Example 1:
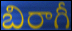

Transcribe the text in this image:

బిరాగీ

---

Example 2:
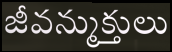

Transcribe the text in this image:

జీవన్ముక్తులు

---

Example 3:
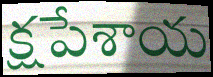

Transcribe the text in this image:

క్షపేశాయ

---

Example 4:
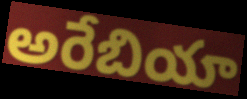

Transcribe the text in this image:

అరేబియా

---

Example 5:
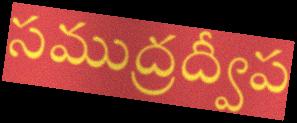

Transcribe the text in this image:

సముద్రద్వీప